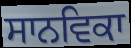
ਸਾਨਵਿਕਾ